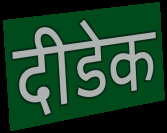
दीडेक